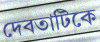
দেবতাটিকে